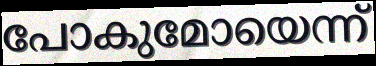
പോകുമോയെന്ന്